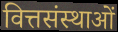
वित्तसंस्थाओं